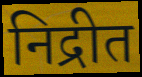
निद्रीत